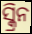
ସ୍କ୍ରିନ